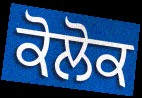
ਕੋਲੋਕ